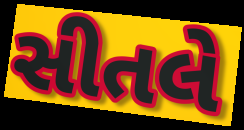
સીતલે